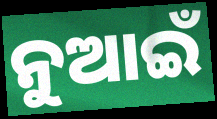
ନୁଆଇଁ